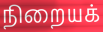
நிறையக்